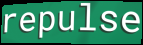
repulse